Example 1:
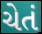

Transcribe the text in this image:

ચેતં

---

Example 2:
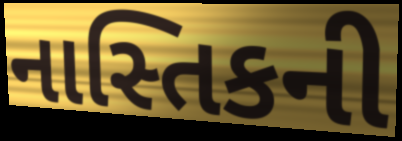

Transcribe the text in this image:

નાસ્તિકની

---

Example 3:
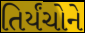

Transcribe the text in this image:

તિર્યંચોને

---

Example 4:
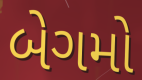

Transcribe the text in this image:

બેગમો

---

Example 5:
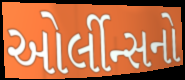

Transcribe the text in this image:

ઓર્લીન્સનો